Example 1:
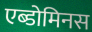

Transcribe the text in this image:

एब्डोमिनस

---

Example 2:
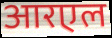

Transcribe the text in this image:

आरएल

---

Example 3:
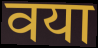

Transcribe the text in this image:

वया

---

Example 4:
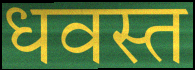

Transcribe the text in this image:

धवस्त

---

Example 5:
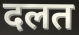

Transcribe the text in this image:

दलत